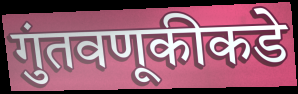
गुंतवणूकीकडे